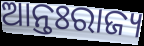
ଆନ୍ତଃରାଜ୍ୟ